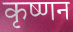
कृष्णन